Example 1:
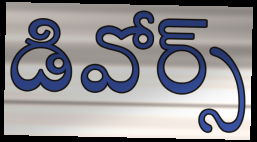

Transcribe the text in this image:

డివోర్స్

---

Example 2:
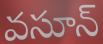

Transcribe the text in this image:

వసూన్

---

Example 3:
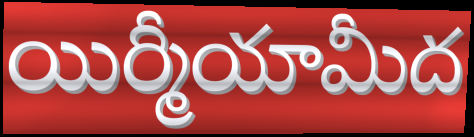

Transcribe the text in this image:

యిర్మీయామీద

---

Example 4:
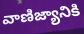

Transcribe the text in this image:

వాణిజ్యానికి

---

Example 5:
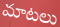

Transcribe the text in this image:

మాటలు